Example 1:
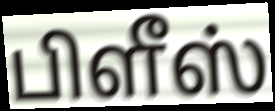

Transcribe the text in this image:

பிளீஸ்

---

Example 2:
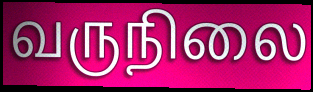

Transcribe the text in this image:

வருநிலை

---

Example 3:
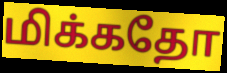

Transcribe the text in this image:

மிக்கதோ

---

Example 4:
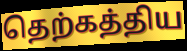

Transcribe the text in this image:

தெற்கத்திய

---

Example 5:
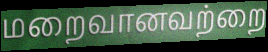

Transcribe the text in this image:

மறைவானவற்றை